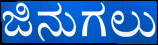
ಜಿನುಗಲು